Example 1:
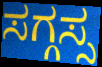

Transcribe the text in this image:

ಸಗ್ಗಸ್ಸ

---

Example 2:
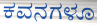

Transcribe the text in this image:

ಕವನಗಳೂ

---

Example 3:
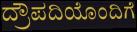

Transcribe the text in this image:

ದ್ರೌಪದಿಯೊಂದಿಗೆ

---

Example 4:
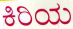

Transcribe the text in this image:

ಕಿರಿಯ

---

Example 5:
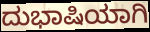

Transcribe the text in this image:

ದುಭಾಷಿಯಾಗಿ